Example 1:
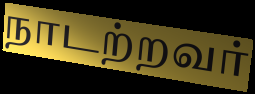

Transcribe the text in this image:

நாடற்றவர்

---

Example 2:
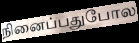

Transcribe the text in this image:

நினைப்பதுபோல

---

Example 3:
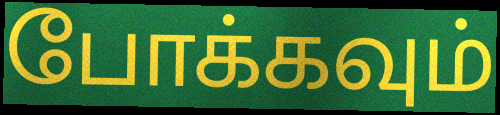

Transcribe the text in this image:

போக்கவும்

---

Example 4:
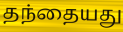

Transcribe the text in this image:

தந்தையது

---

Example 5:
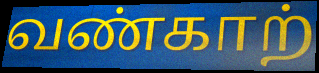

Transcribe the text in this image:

வண்காற்